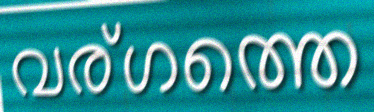
വര്ഗത്തെ